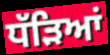
ਧੱੜਿਆਂ